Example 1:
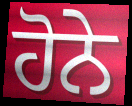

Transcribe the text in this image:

ਹੋਨੇ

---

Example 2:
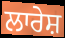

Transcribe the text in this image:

ਲਾਰੇਸ਼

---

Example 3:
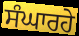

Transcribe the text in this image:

ਸੰਘਾਰਹੇ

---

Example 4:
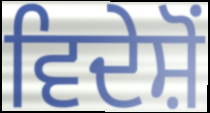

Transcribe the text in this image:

ਵਿਦੇਸ਼ੋਂ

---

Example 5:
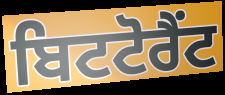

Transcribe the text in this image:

ਬਿਟਟੋਰੈਂਟ